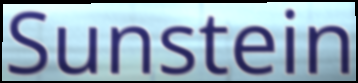
Sunstein